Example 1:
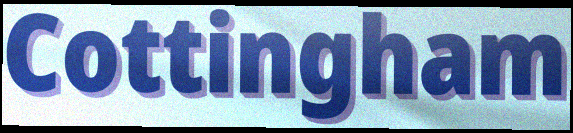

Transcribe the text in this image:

Cottingham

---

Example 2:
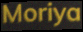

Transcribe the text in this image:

Moriya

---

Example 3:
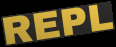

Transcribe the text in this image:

REPL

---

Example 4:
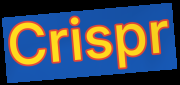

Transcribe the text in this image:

Crispr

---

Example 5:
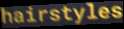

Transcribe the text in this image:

hairstyles